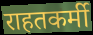
राहतकर्मी